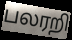
பலரறி